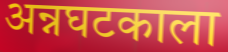
अन्नघटकाला